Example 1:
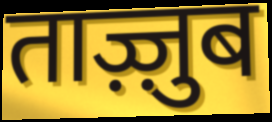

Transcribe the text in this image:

ताज़्ज़ुब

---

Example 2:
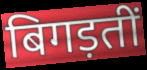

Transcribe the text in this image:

बिगड़तीं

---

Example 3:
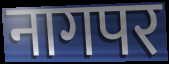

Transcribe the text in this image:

नागपर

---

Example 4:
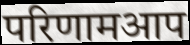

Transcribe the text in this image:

परिणामआप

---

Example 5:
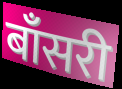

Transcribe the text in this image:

बाँसरी